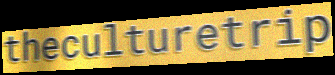
theculturetrip